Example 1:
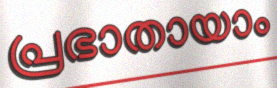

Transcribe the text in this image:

പ്രഭാതായാം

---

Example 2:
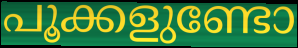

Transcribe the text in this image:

പൂക്കളുണ്ടോ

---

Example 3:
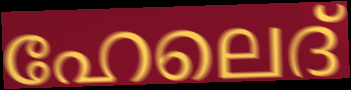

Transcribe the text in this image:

ഹേലെദ്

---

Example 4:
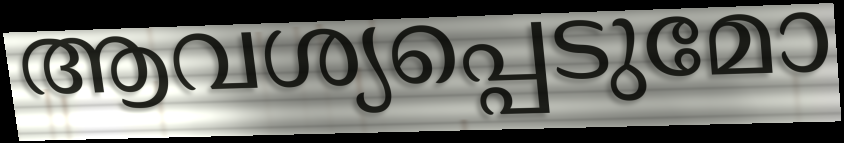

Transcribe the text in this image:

ആവശ്യപ്പെടുമോ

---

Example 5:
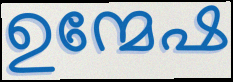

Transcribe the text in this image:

ഉന്മേഷ